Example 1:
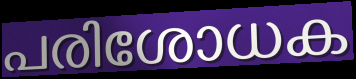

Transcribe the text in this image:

പരിശോധക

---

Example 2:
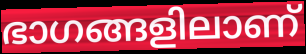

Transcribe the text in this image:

ഭാഗങ്ങളിലാണ്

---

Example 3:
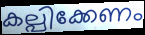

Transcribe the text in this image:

കല്പിക്കേണം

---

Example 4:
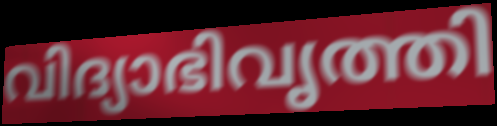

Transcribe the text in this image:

വിദ്യാഭിവൃത്തി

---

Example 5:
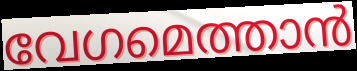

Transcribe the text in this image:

വേഗമെത്താൻ